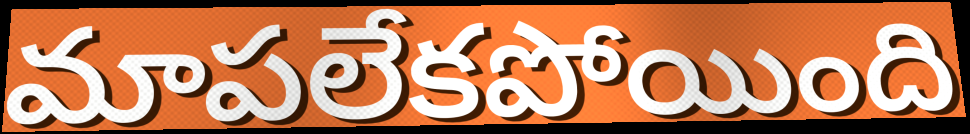
మాపలేకపోయింది